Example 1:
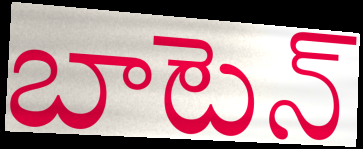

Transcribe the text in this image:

బాటెన్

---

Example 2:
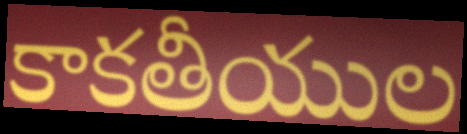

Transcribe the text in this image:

కాకతీయుల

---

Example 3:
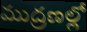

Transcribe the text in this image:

ముద్రణల్లో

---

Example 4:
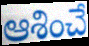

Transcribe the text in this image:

ఆశించే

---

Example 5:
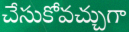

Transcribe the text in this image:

చేసుకోవచ్చుగా